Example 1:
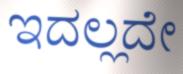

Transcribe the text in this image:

ಇದಲ್ಲದೇ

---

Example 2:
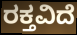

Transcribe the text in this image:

ರಕ್ತವಿದೆ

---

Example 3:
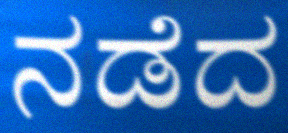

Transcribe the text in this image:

ನಡೆದ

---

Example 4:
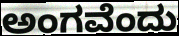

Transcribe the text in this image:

ಅಂಗವೆಂದು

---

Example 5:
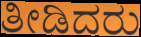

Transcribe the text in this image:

ತೀಡಿದರು